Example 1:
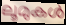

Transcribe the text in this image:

ലൂമുകൾ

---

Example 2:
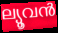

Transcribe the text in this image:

ല്യൂവൻ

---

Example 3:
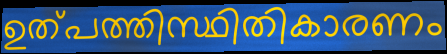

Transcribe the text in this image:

ഉത്പത്തിസ്ഥിതികാരണം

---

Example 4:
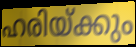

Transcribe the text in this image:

ഹരിയ്ക്കും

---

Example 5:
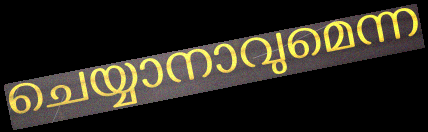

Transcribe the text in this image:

ചെയ്യാനാവുമെന്ന